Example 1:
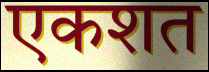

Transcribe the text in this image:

एकशत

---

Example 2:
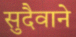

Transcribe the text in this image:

सुदैवाने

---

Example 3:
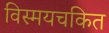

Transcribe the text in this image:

विस्मयचकित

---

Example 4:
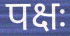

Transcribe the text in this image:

पक्षः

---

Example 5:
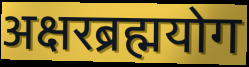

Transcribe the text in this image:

अक्षरब्रह्मयोग